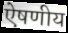
ऐषणीय